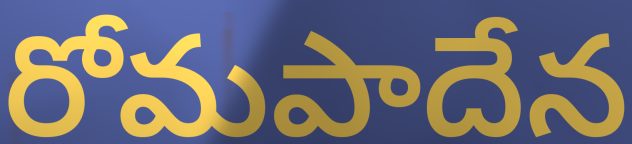
రోమపాదేన